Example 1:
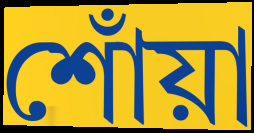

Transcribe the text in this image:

শোঁয়া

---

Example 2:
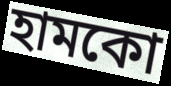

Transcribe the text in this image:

হামকো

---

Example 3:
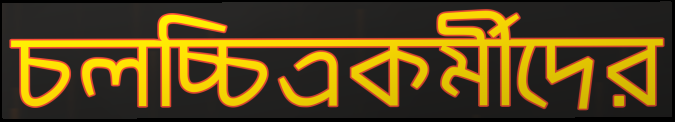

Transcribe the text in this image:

চলচ্চিত্রকর্মীদের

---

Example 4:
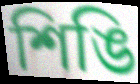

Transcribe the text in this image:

শিঙি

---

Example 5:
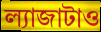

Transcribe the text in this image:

ল্যাজাটাও